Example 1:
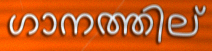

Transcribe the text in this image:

ഗാനത്തില്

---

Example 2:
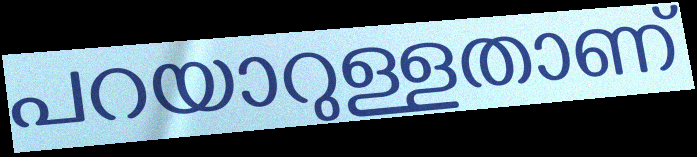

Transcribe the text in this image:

പറയാറുള്ളതാണ്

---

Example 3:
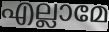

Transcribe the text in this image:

എല്ലാമേ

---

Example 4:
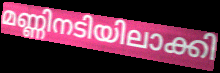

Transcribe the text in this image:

മണ്ണിനടിയിലാക്കി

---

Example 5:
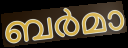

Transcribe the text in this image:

ബർമാ